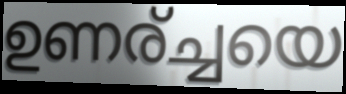
ഉണര്ച്ചയെ